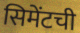
सिमेंटची